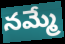
నమ్మే